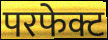
परफेक्ट